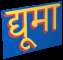
द्यूमा